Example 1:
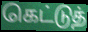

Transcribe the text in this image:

கெட்டுத்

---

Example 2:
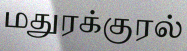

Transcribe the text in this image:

மதுரக்குரல்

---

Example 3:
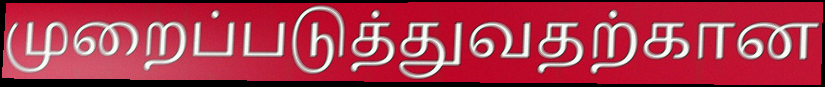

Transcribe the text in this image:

முறைப்படுத்துவதற்கான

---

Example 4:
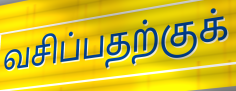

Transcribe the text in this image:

வசிப்பதற்குக்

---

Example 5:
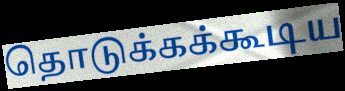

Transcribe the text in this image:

தொடுக்கக்கூடிய